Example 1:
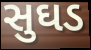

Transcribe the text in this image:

સુઘડ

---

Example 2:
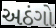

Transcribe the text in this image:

અઠંગો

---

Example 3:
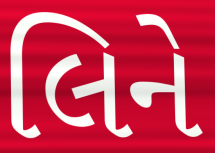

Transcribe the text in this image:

લિને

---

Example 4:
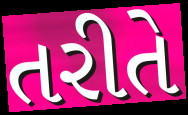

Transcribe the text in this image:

તરીતે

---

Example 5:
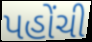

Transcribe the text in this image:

પહોંચી